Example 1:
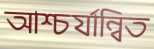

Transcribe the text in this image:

আশ্চর্যান্বিত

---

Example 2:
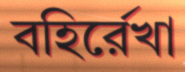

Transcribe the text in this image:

বহির্রেখা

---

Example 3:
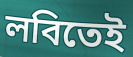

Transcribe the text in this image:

লবিতেই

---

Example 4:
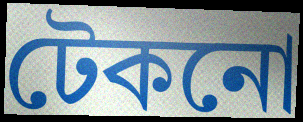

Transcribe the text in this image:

টেকনো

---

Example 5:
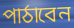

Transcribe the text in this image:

পাঠাবেন